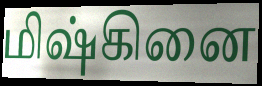
மிஷ்கினை